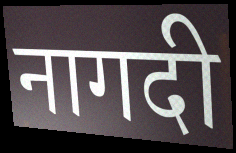
नागदी